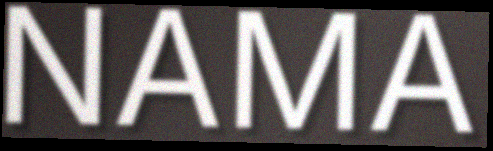
NAMA